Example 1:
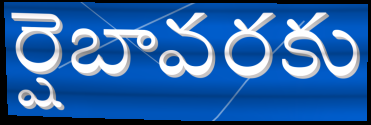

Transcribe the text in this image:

ర్షెబావరకు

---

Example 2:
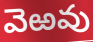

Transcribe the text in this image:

వెఱవు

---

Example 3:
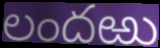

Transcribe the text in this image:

లందఱు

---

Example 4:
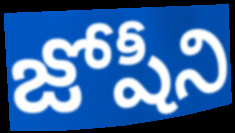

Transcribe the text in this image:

జోషీని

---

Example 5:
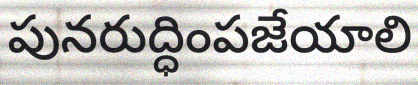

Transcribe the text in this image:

పునరుద్ధింపజేయాలి